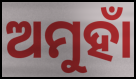
ଅମୁହାଁ